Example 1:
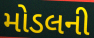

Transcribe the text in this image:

મોડલની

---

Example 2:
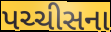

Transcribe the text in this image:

પચ્ચીસના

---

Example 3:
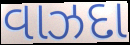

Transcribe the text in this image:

વાઝદા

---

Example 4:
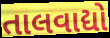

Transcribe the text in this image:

તાલવાદ્યો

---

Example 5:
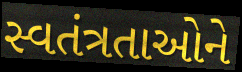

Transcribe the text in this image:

સ્વતંત્રતાઓને